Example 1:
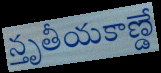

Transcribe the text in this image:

న్తృతీయకాణ్డే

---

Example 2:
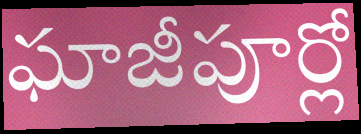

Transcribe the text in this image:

ఘాజీపూర్లో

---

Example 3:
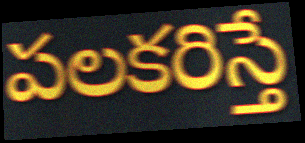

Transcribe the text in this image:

పలకరిస్తే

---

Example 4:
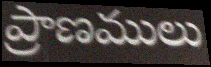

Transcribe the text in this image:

ప్రాణములు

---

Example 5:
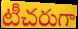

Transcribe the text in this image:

టీచరుగా